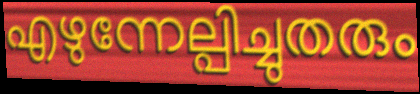
എഴുന്നേല്പിച്ചുതരും